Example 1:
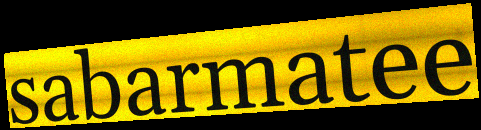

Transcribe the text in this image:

sabarmatee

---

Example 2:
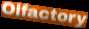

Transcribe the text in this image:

Olfactory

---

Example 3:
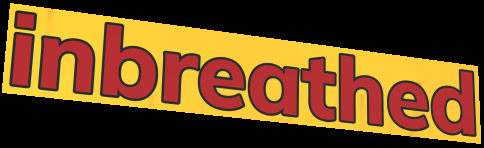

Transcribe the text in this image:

inbreathed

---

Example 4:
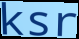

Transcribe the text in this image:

ksr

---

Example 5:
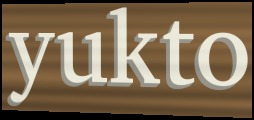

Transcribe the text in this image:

yukto